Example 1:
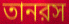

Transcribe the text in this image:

তানরস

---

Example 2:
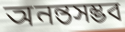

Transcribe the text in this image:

অনন্তসম্ভব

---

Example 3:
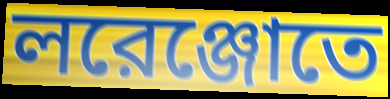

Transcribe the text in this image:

লরেঞ্জোতে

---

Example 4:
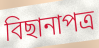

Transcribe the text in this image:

বিছানাপত্র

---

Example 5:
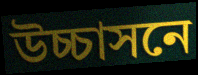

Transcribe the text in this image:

উচ্চাসনে